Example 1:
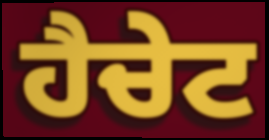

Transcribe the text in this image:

ਹੈਚੇਟ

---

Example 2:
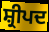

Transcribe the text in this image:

ਸ਼੍ਰੀਪਦ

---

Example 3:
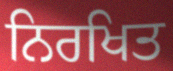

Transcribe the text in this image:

ਨਿਰਖਿਤ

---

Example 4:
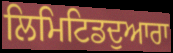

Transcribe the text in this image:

ਲਿਮਿਟਿਡਦੁਆਰਾ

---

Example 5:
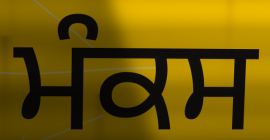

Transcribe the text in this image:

ਮੰਕਸ